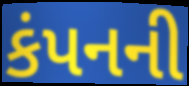
કંપનની